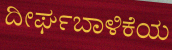
ದೀರ್ಘಬಾಳಿಕೆಯ